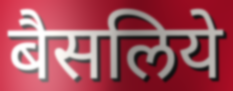
बैसलिये